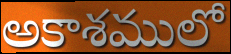
అకాశములో